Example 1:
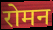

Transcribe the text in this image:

रोमन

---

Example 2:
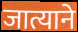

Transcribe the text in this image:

जात्याने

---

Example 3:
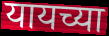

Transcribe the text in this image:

यायच्या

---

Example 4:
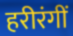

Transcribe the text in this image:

हरीरंगीं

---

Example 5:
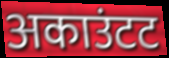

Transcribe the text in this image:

अकाउंटट